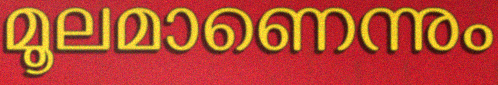
മൂലമാണെന്നും